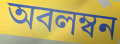
অবলম্বন